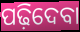
ପଢ଼ିଦେବା